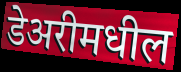
डेअरीमधील